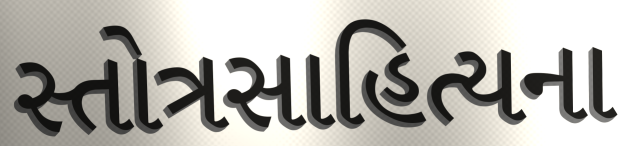
સ્તોત્રસાહિત્યના